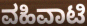
ವಹಿವಾಟಿ